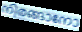
നിരങ്ങാനോ